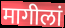
मागीलां